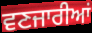
ਵਣਜਾਰੀਆਂ